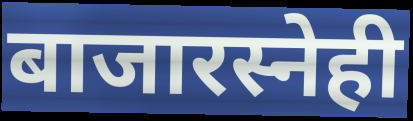
बाजारस्नेही